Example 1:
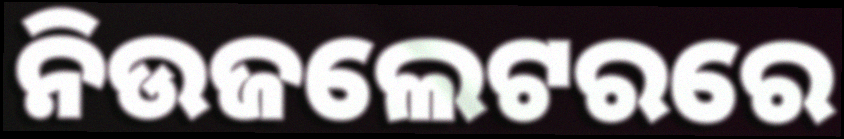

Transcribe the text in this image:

ନିଉଜଲେଟରରେ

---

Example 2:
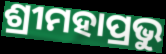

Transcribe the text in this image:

ଶ୍ରୀମହାପ୍ରଭୁ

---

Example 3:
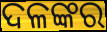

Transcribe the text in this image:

ଦଳଙ୍କର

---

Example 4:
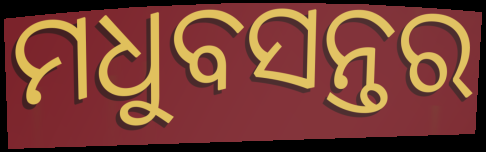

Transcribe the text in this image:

ମଧୁବସନ୍ତର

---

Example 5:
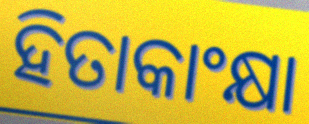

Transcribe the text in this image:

ହିତାକାଂକ୍ଷା